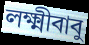
লক্ষ্মীবাবু